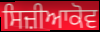
ਸਿਜ਼ੀਆਕੋਵ